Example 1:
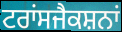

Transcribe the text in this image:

ਟਰਾਂਸਜੈਕਸ਼ਨਾਂ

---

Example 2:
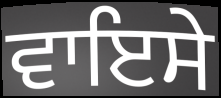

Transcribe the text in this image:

ਵਾਇਸੇ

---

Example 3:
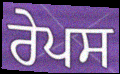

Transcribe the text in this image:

ਰੇਪਸ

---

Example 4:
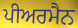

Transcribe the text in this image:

ਪੀਅਰਮੈਨ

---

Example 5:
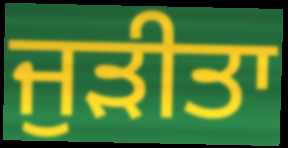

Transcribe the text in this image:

ਜੁੜੀਤਾ